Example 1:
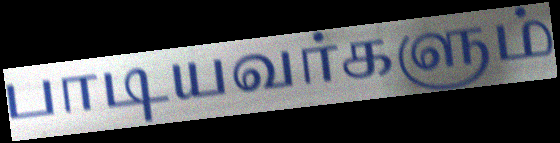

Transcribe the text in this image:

பாடியவர்களும்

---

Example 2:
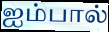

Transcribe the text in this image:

ஐம்பால்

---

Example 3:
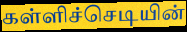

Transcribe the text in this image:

கள்ளிச்செடியின்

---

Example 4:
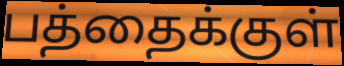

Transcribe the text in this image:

பத்தைக்குள்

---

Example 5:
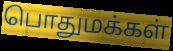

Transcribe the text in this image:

பொதுமக்கள்